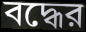
বদ্ধের